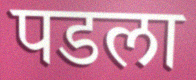
पडला